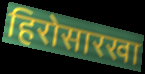
हिरोसारखा